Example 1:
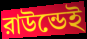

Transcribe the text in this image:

রাউন্ডেই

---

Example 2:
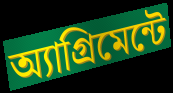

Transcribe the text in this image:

অ্যাগ্রিমেন্টে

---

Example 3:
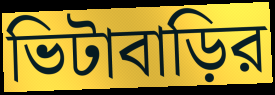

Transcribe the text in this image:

ভিটাবাড়ির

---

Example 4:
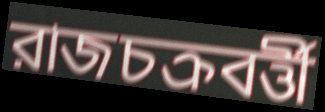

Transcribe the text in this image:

রাজচক্রবর্ত্তী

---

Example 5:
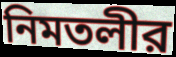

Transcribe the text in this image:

নিমতলীর